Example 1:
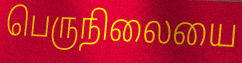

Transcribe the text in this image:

பெருநிலையை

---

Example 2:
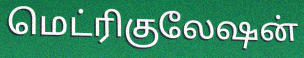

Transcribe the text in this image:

மெட்ரிகுலேஷன்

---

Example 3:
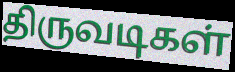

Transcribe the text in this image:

திருவடிகள்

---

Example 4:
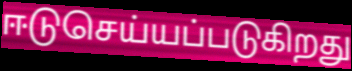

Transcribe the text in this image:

ஈடுசெய்யப்படுகிறது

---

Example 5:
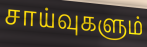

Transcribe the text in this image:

சாய்வுகளும்